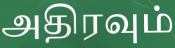
அதிரவும்